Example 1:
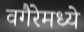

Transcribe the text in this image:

वगैरेमध्ये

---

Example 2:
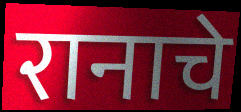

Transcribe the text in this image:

रानाचे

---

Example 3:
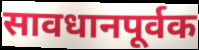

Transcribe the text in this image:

सावधानपूर्वक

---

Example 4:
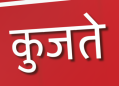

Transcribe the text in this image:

कुजते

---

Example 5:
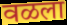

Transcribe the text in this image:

वळला